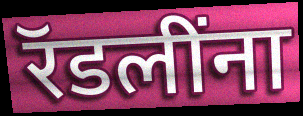
रॅडलींना